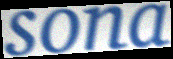
sona